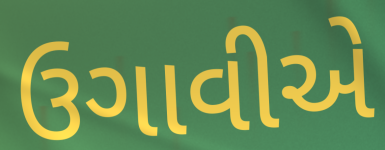
ઉગાવીએ